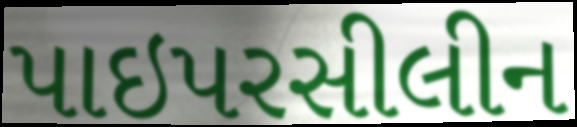
પાઇપરસીલીન